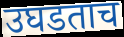
उघडताच